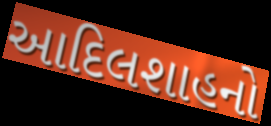
આદિલશાહનો